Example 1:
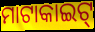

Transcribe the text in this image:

ମାଟାକାଇଟ୍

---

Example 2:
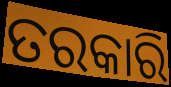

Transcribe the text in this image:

ତରକାରି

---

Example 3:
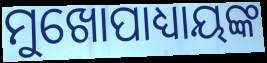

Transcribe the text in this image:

ମୁଖୋପାଧ୍ୟାୟଙ୍କ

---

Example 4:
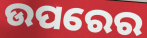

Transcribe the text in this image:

ଉପରେର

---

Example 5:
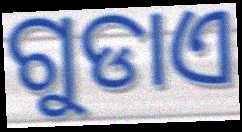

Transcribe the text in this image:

ଗୁଡାଏ